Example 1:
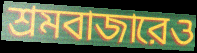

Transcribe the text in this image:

শ্রমবাজারেও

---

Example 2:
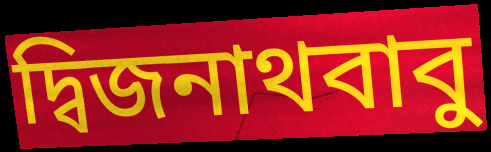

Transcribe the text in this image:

দ্বিজনাথবাবু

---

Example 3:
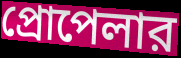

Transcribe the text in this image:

প্রোপেলার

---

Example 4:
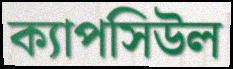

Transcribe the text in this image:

ক্যাপসিউল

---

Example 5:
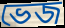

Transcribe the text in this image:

ভেজ